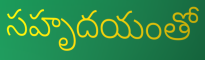
సహృదయంతో